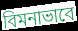
বিমনাভাবে